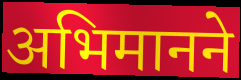
अभिमानने